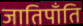
जातिपाँति